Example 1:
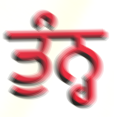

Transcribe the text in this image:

ਤੁੰਨ੍ਹ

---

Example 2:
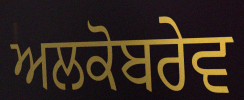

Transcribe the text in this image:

ਅਲਕੋਬਰੇਵ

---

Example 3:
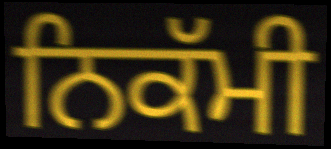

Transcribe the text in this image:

ਨਿਕੱਮੀ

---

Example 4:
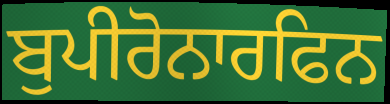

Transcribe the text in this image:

ਬੁਪੀਰੋਨਾਰਫਿਨ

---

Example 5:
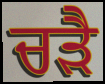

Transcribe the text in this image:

ਚੜੈ